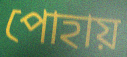
পোহায়